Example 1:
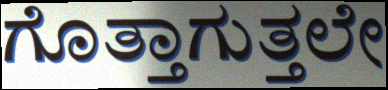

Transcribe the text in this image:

ಗೊತ್ತಾಗುತ್ತಲೇ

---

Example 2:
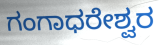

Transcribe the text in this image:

ಗಂಗಾಧರೇಶ್ವರ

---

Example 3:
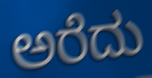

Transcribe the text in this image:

ಅರೆದು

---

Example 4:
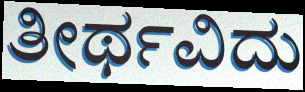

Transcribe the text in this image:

ತೀರ್ಥವಿದು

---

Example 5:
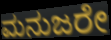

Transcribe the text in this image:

ಮನುಜರೇ